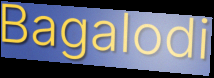
Bagalodi